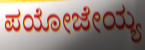
ಪಯೋಜೇಯ್ಯ